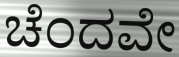
ಚೆಂದವೇ